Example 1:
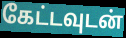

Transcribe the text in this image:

கேட்டவுடன்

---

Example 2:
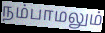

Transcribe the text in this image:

நம்பாமலும்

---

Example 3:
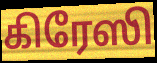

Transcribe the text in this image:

கிரேஸி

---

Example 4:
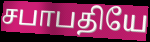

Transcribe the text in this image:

சபாபதியே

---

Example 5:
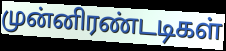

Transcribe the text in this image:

முன்னிரண்டடிகள்